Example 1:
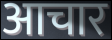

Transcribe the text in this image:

आचार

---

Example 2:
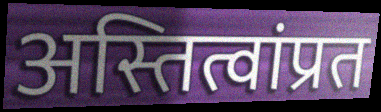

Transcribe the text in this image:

अस्तित्वांप्रत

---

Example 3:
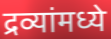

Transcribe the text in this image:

द्रव्यांमध्ये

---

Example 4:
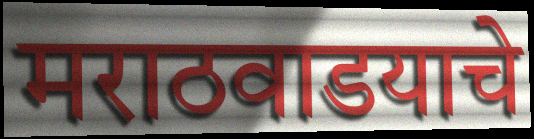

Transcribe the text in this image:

मराठवाडयाचे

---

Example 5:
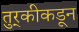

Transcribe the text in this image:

तुर्कीकडून